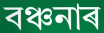
বঞ্চনাৰ